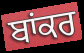
ਬਾਂਕਰ